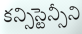
కన్సిస్టెన్సీని